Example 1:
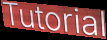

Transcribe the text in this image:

Tutorial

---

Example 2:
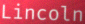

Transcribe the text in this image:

Lincoln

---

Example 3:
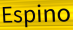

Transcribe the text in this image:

Espino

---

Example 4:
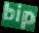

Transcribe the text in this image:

bip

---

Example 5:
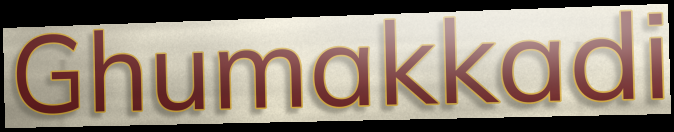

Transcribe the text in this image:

Ghumakkadi